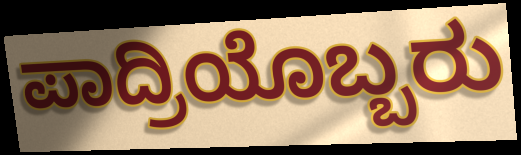
ಪಾದ್ರಿಯೊಬ್ಬರು